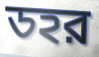
ডহর